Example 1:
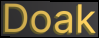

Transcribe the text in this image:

Doak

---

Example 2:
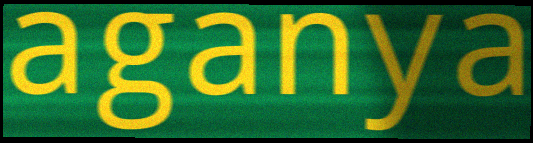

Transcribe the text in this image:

aganya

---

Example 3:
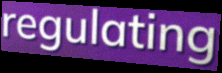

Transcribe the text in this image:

regulating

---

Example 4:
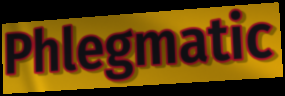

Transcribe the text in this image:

Phlegmatic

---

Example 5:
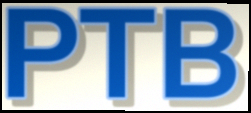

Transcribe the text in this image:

PTB